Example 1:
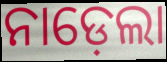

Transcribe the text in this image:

ନାଡ଼େଲା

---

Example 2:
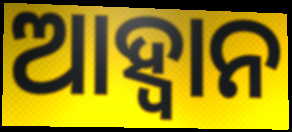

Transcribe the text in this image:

ଆହ୍ୱାନ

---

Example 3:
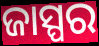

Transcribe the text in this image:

ଜାସ୍ପର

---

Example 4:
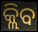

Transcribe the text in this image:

କ୍ଲିବ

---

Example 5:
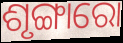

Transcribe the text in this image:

ଶୃଙ୍ଗାରୋ